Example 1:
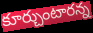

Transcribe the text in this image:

కూర్చుంటారన్న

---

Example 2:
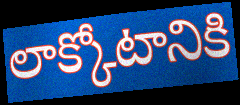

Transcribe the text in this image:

లాక్కోటానికి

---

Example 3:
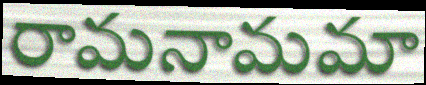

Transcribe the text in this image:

రామనామమా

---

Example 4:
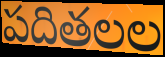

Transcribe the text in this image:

పదితలల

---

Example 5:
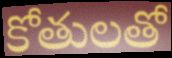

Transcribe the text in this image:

కోతులతో